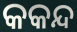
କକନ୍ଦ